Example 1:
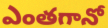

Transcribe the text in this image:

ఎంతగానో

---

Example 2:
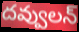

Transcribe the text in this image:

దవ్వులన్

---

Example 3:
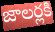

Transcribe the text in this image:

జాలర్లకి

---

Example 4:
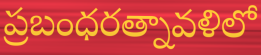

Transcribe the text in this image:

ప్రబంధరత్నావళిలో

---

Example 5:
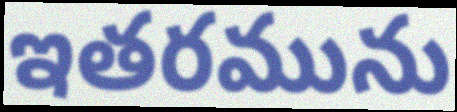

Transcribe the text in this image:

ఇతరమును